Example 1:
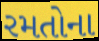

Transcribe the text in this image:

રમતોના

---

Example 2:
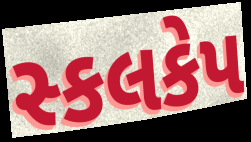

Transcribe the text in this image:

સ્કલકેપ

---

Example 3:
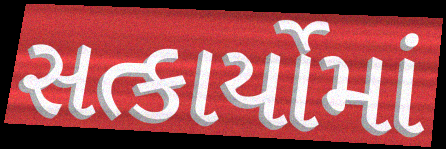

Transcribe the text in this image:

સત્કાર્યોમાં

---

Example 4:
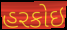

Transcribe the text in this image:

હરકોઇ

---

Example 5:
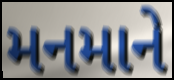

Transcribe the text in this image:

મનમાને